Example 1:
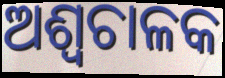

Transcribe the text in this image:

ଅଶ୍ୱଚାଳକ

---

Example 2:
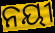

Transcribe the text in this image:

ନୟୀ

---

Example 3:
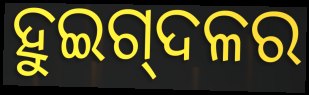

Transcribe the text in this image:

ହୁଇଗ୍‌ଦଳର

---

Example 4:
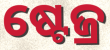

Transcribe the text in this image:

ଷ୍ଟେଜ୍ର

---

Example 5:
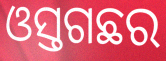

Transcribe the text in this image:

ଓସ୍ତଗଛର